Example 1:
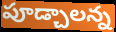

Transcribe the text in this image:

పూడ్చాలన్న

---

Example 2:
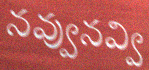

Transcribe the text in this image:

నవ్వునవ్వి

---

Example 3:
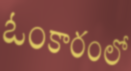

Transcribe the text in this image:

ఓంకారంలో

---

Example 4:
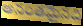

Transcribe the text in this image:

అనంతమైనది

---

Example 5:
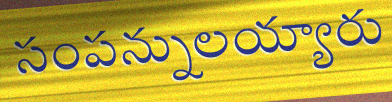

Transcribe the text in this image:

సంపన్నులయ్యారు